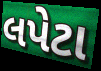
લપેટા